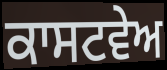
ਕਾਸਟਵੇਅ